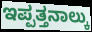
ಇಪ್ಪತ್ತನಾಲ್ಕು